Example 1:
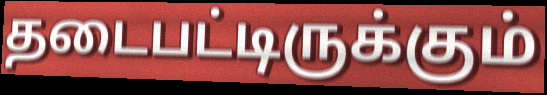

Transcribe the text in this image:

தடைபட்டிருக்கும்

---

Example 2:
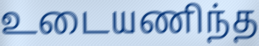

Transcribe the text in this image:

உடையணிந்த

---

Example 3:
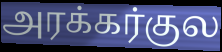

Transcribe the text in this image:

அரக்கர்குல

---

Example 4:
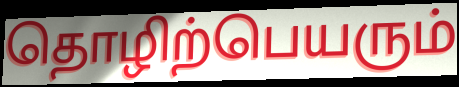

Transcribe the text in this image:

தொழிற்பெயரும்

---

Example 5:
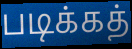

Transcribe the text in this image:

படிக்கத்